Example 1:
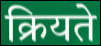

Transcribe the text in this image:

क्रियते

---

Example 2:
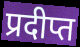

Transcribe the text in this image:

प्रदीप्त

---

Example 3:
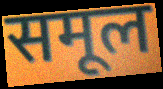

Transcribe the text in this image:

समूल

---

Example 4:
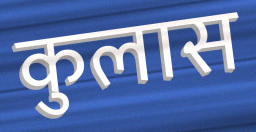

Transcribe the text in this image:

कुलास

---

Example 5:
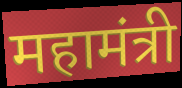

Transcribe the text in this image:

महामंत्री